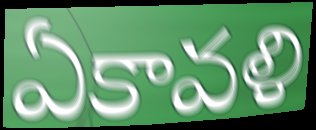
ఏకావళి